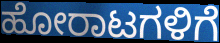
ಹೋರಾಟಗಳಿಗೆ